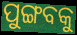
ପୁଙ୍ଗବକୁ